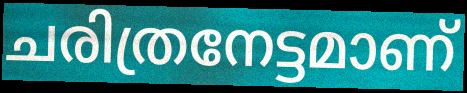
ചരിത്രനേട്ടമാണ്